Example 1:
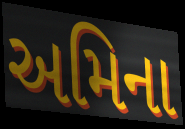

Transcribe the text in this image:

અમિના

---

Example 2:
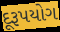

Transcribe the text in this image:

દૂરૂપયોગ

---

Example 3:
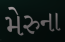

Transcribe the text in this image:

મેરુના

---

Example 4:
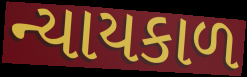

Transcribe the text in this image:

ન્યાયકાળ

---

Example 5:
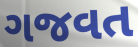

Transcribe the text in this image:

ગજવત